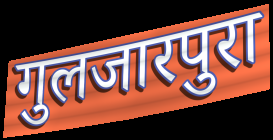
गुलजारपुरा